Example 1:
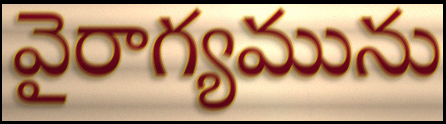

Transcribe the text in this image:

వైరాగ్యమును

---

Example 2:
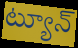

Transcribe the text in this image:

ట్యూన్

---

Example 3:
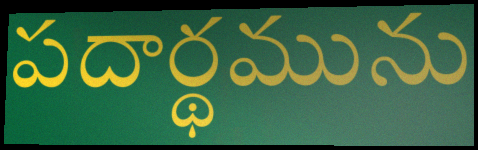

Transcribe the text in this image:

పదార్థమును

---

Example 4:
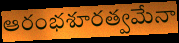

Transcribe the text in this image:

ఆరంభశూరత్వమేనా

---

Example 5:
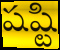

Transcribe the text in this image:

షష్టి